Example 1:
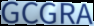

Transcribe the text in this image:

GCGRA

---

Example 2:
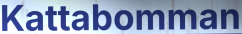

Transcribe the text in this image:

Kattabomman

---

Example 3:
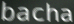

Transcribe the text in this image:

bacha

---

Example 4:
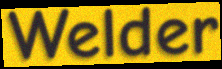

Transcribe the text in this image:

Welder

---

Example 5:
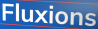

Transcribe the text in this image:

Fluxions